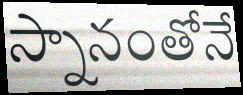
స్నానంతోనే